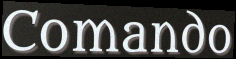
Comando